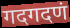
गदगदणं